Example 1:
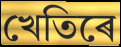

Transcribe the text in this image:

খেতিৰে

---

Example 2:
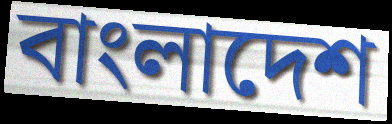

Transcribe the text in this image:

বাংলাদেশ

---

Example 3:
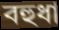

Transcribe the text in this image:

বহুধা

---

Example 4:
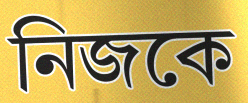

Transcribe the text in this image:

নিজকে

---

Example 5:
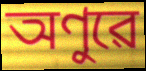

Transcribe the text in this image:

অণুৱে